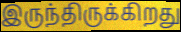
இருந்திருக்கிறது